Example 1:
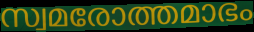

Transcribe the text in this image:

സ്വമരോത്തമാഭം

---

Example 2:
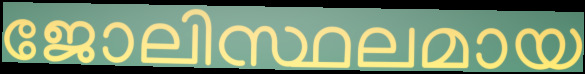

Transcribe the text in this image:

ജോലിസ്ഥലമായ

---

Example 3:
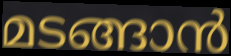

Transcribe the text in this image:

മടങ്ങാൻ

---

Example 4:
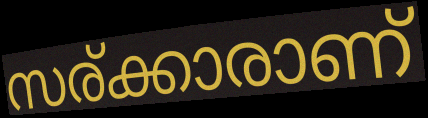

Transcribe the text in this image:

സര്ക്കാരാണ്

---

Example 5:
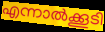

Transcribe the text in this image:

എന്നാൽക്കൂടി